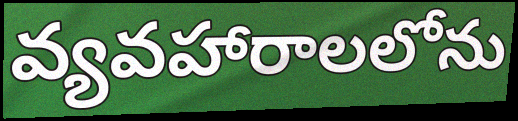
వ్యవహారాలలోను